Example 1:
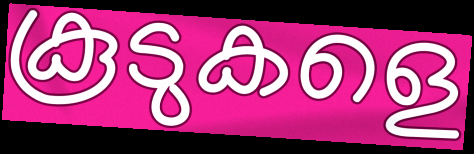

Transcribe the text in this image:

കൂടുകളെ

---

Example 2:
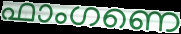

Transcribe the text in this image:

ഫാംഗണെ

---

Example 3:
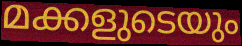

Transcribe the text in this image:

മക്കളുടെയും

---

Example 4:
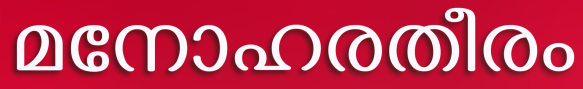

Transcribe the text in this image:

മനോഹരതീരം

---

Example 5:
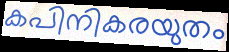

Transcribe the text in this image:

കപിനികരയുതം